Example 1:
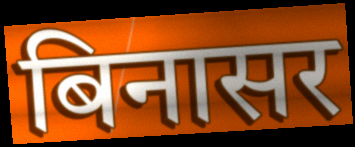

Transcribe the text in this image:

बिनासर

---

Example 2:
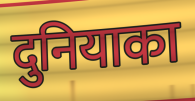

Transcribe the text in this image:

दुनियाका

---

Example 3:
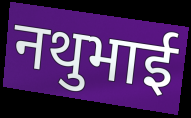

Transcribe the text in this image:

नथुभाई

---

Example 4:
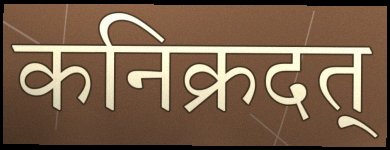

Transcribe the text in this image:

कनिक्रदत्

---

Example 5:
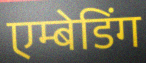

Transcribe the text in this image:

एम्बेडिंग